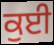
ਕੁਈ